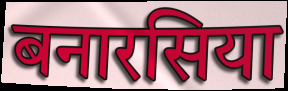
बनारसिया